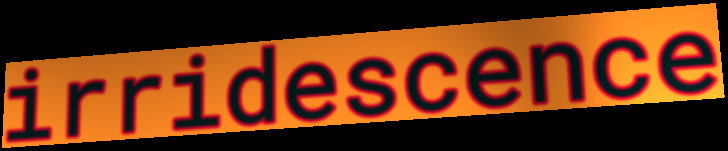
irridescence